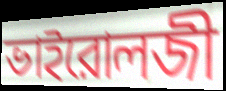
ভাইরোলজী